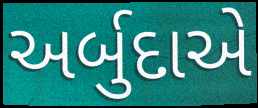
અર્બુદાએ